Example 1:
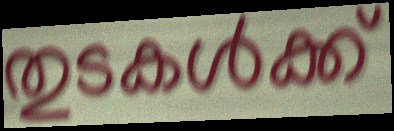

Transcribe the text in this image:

തുടകൾക്ക്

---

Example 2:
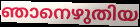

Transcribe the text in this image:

ഞാനെഴുതിയ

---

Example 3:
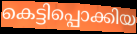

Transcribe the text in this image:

കെട്ടിപ്പൊക്കിയ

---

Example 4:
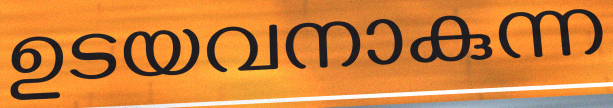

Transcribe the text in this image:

ഉടയവനാകുന്ന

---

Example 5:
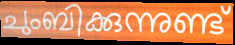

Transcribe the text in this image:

ചുംബിക്കുന്നുണ്ട്